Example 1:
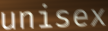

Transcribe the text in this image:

unisex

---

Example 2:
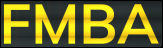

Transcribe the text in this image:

FMBA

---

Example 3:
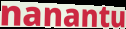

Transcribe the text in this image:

nanantu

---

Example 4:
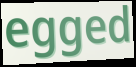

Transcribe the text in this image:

egged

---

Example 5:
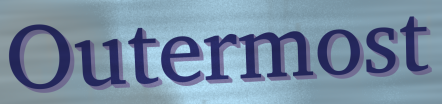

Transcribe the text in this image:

Outermost